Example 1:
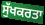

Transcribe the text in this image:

ਸੁੱਖਕਰਤਾ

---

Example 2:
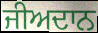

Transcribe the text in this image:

ਜੀਅਦਾਨ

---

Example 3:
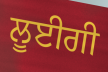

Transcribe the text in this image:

ਲੂਈਗੀ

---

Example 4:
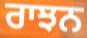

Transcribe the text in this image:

ਰਾਝਨ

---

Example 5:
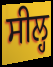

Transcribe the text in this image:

ਸੀਲ੍ਹ